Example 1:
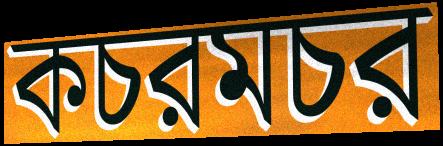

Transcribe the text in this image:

কচরমচর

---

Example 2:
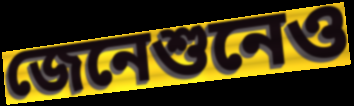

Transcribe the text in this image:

জেনেশুনেও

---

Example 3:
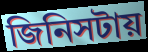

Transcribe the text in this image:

জিনিসটায়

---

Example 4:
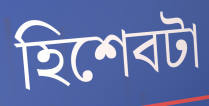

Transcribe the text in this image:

হিশেবটা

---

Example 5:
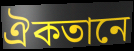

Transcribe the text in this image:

ঐকতানে